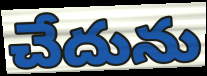
చేదును